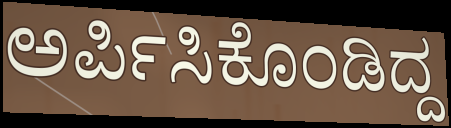
ಅರ್ಪಿಸಿಕೊಂಡಿದ್ದ